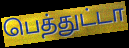
பெத்துட்டா